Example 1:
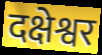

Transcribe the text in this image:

दक्षेश्वर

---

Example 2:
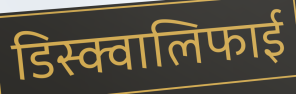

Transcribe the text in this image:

डिस्क्वालिफाई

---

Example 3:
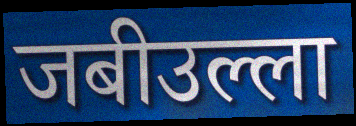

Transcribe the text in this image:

जबीउल्ला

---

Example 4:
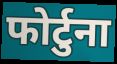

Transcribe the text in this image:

फोर्टुना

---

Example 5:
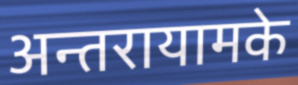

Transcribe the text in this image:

अन्तरायामके